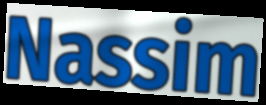
Nassim